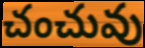
చంచువు